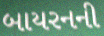
બાયરનની